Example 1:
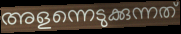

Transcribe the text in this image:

അളന്നെടുക്കുന്നത്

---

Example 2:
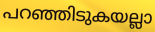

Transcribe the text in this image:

പറഞ്ഞിടുകയല്ലാ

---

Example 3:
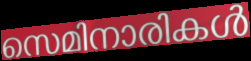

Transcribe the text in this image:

സെമിനാരികൾ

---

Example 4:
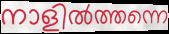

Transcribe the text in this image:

നാളിൽത്തന്നെ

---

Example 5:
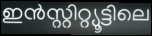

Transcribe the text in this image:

ഇൻസ്റ്റിറ്റ്യൂട്ടിലെ